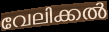
വേലിക്കൽ